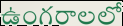
ఉంగరాలలో